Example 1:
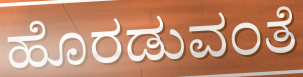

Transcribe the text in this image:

ಹೊರಡುವಂತೆ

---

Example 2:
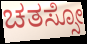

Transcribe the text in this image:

ಚತಸ್ಸೋ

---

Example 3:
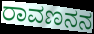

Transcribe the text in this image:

ರಾವಣನನ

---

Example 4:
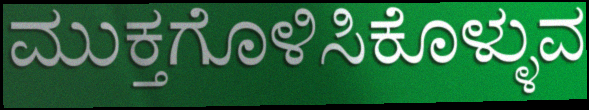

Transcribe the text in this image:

ಮುಕ್ತಗೊಳಿಸಿಕೊಳ್ಳುವ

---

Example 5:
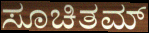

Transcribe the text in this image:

ಸೂಚಿತಮ್